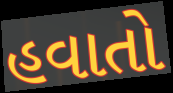
હવાતો